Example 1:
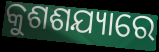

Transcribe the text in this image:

କୁଶଶଯ୍ୟାରେ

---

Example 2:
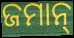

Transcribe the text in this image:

ଜମାନ୍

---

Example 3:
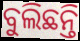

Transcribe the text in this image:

ବୁଲିଛନ୍ତି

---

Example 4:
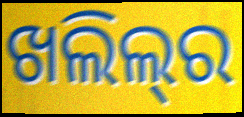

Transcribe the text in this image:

ଖଲିଲ୍‍ର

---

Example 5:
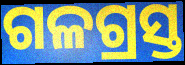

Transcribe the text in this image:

ଗଳଗ୍ରସ୍ତ